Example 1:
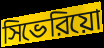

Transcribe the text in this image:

সিভেরিয়ো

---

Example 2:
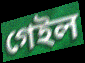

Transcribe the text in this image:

গেইল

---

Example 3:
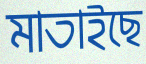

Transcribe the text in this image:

মাতাইছে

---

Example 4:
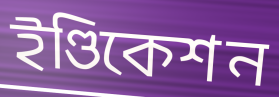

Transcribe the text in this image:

ইণ্ডিকেশন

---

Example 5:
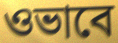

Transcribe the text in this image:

ওভাবে